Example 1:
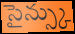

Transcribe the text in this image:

సైన్స్కు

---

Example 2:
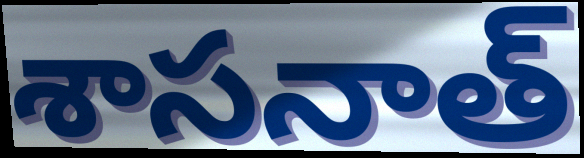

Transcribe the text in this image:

శాసనాత్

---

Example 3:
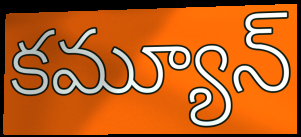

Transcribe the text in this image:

కమ్యూన్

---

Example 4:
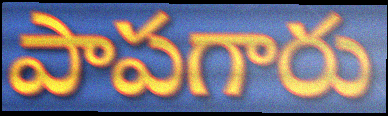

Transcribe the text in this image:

పాపగారు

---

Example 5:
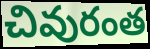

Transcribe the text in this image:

చివురంత